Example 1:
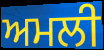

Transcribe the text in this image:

ਅਮਲੀ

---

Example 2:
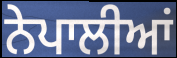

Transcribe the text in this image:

ਨੇਪਾਲੀਆਂ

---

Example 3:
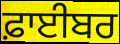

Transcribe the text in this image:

ਫ਼ਾਈਬਰ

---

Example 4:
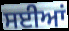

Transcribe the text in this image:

ਸਈਆਂ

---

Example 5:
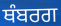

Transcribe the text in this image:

ਥੰਬਰਗ